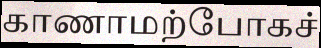
காணாமற்போகச்